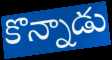
కొన్నాడు